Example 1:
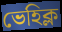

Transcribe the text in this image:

ভেহিক্ল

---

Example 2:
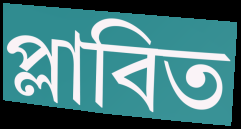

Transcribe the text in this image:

প্লাবিত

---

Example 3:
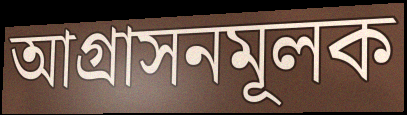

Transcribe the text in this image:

আগ্রাসনমূলক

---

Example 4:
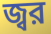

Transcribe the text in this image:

জ্বর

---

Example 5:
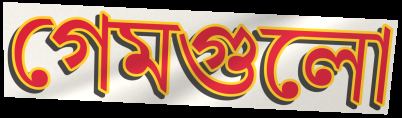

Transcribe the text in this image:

গেমগুলো